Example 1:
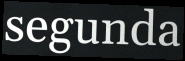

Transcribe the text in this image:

segunda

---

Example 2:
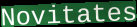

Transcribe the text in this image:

Novitates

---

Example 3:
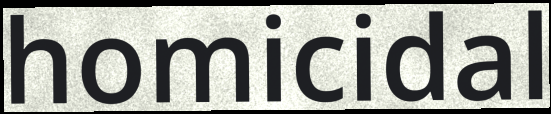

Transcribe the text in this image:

homicidal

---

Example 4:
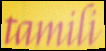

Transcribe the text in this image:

tamili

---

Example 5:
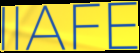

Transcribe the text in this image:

IIAFE